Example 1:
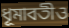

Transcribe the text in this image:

ধূমাবতীও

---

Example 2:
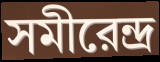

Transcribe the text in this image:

সমীরেন্দ্র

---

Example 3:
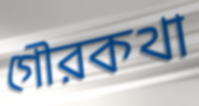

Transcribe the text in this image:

গৌরকথা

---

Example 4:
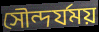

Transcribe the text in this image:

সৌন্দর্যময়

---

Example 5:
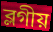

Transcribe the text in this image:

ব্লগীয়